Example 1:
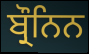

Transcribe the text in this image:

ਬ੍ਰੌਨਿਨ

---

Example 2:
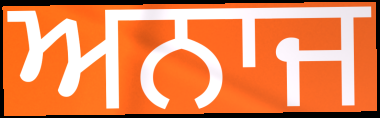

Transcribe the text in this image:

ਅਨਾਜ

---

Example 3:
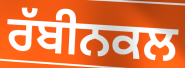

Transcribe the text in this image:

ਰੱਬੀਨਕਲ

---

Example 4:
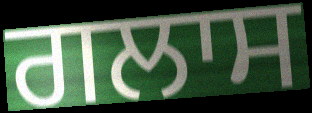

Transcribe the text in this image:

ਗਲਾਸ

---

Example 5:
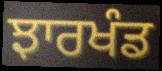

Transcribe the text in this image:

ਝਾਰਖੰਡ